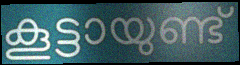
കൂട്ടായുണ്ട്